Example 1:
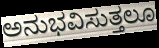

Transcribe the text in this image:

ಅನುಭವಿಸುತ್ತಲೂ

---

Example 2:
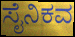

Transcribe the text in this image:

ಸೈನಿಕವ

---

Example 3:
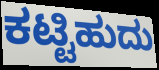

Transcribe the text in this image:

ಕಟ್ಟಿಹುದು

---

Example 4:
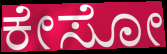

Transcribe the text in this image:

ಕೇಸೋ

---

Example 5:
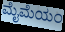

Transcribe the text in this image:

ಮೈಮೆಯಂ